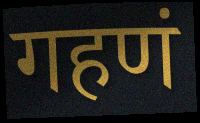
गहणं